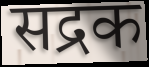
सद्रक